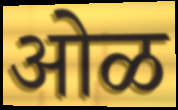
ओळ